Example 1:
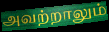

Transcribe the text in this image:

அவற்றாலும்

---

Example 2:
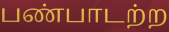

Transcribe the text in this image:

பண்பாடற்ற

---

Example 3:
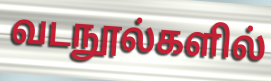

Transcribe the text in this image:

வடநூல்களில்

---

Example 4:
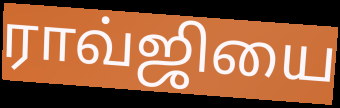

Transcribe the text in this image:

ராவ்ஜியை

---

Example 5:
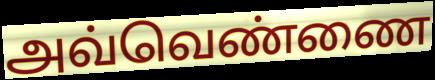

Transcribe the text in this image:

அவ்வெண்ணை